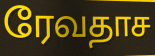
ரேவதாச